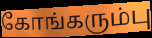
கோங்கரும்பு